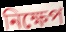
নিক্ষেপ